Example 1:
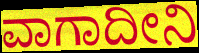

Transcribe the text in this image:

ವಾಗಾದೀನಿ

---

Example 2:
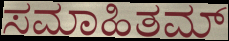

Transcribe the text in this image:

ಸಮಾಹಿತಮ್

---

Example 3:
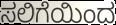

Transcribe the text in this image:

ಸಲಿಗೆಯಿಂದ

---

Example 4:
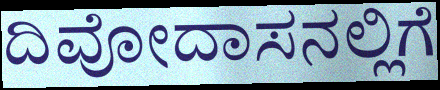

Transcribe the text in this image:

ದಿವೋದಾಸನಲ್ಲಿಗೆ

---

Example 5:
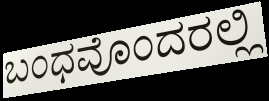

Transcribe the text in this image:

ಬಂಧವೊಂದರಲ್ಲಿ